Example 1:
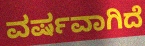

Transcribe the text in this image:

ವರ್ಷವಾಗಿದೆ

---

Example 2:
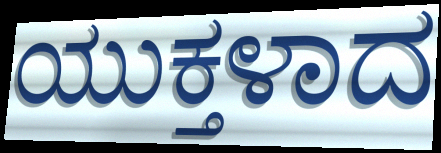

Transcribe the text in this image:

ಯುಕ್ತಳಾದ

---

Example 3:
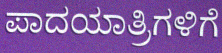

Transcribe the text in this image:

ಪಾದಯಾತ್ರಿಗಳಿಗೆ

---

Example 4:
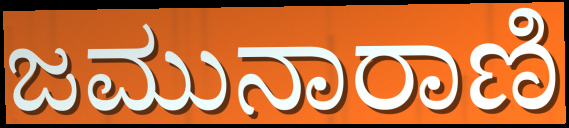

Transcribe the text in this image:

ಜಮುನಾರಾಣಿ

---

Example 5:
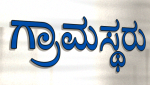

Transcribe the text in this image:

ಗ್ರಾಮಸ್ಥರು